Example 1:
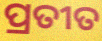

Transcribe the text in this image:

ପ୍ରତୀତ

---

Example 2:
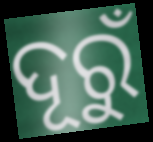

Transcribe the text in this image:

ଦୂରୁଁ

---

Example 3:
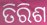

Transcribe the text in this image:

ତିରିଶ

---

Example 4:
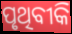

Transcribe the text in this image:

ପୃଥିବୀକି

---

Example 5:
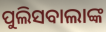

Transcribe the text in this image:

ପୁଲିସବାଲାଙ୍କ